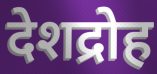
देशद्रोह